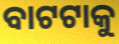
ବାଟଟାକୁ